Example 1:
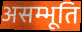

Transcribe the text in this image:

असम्भूति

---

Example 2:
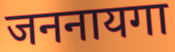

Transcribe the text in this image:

जननायगा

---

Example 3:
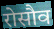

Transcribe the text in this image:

रोसौव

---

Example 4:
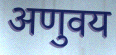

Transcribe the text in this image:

अणुवय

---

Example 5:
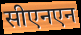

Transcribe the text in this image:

सीएनएन